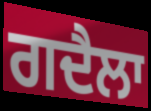
ਗਦੈਲਾ